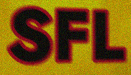
SFL